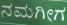
ನಮಗೀಗ